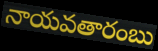
నాయవతారంబు